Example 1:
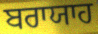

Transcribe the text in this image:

ਬਰਾਯਾਹ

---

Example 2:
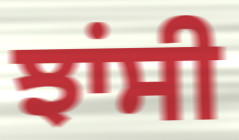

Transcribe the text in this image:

ਝਾਂਸੀ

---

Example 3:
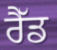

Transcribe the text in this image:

ਰੈੱਡ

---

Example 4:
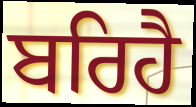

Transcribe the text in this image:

ਬਰਿਹੈ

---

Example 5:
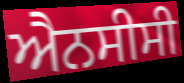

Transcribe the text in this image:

ਐਨਸੀਸੀ